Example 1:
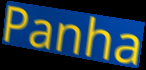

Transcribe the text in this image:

Panha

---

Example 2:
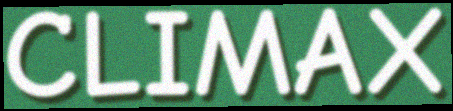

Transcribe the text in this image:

CLIMAX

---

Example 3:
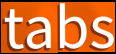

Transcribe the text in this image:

tabs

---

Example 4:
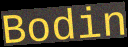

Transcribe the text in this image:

Bodin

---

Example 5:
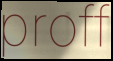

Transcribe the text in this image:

proff